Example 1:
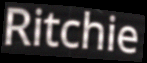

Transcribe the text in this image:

Ritchie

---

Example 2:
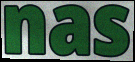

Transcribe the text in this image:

nas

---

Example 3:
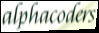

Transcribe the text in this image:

alphacoders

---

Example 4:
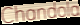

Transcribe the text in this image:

Chandola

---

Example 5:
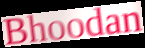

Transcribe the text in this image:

Bhoodan